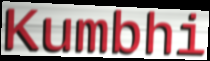
Kumbhi